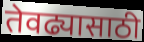
तेवढ्यासाठी